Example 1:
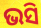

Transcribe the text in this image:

ଭସି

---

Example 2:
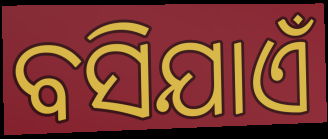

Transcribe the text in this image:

ବସିଯାଏଁ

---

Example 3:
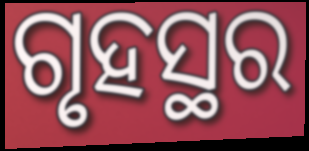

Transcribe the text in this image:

ଗୃହସ୍ଥର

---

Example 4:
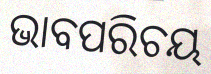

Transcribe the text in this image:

ଭାବପରିଚୟ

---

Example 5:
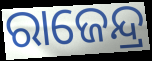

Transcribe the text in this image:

ରାଜେନ୍ଦ୍ର